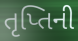
તૃપ્તિની